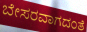
ಬೇಸರವಾಗದಂತೆ